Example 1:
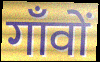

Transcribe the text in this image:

गाँवों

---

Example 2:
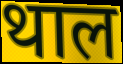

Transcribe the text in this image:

थाल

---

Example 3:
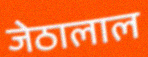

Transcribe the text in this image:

जेठालाल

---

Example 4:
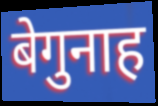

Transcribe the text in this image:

बेगुनाह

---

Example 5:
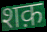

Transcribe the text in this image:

शक़